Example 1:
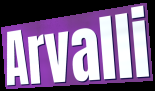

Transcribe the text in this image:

Arvalli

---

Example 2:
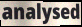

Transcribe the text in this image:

analysed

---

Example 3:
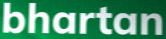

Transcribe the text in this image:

bhartan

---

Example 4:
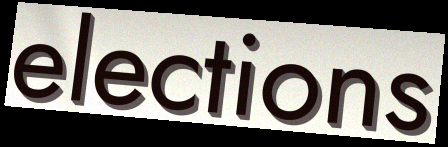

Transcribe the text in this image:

elections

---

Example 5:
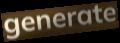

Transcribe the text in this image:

generate